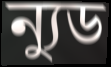
ন্যুড